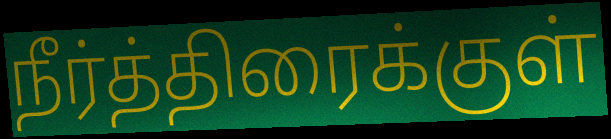
நீர்த்திரைக்குள்